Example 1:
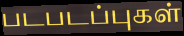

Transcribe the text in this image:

படபடப்புகள்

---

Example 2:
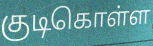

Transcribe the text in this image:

குடிகொள்ள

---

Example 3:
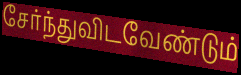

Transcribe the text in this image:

சேர்ந்துவிடவேண்டும்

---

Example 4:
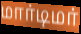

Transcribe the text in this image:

மார்டிமர்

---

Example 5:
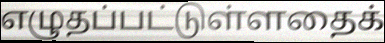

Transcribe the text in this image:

எழுதப்பட்டுள்ளதைக்